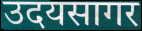
उदयसागर